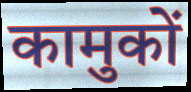
कामुकों